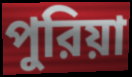
পুরিয়া